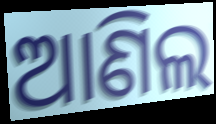
ଆଣିଲ